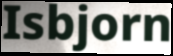
Isbjorn